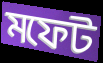
মফেট